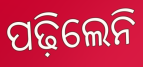
ପଢ଼ିଲେନି